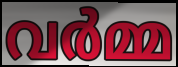
വർമ്മ